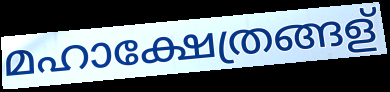
മഹാക്ഷേത്രങ്ങള്